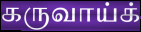
கருவாய்க்